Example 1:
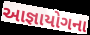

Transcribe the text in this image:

આજ્ઞાયોગના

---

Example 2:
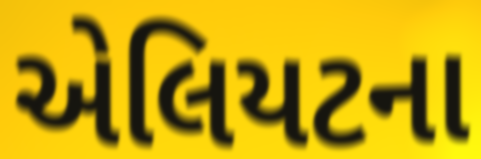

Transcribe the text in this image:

એલિયટના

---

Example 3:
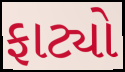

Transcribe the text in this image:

ફાટ્યો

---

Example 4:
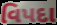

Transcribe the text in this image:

વિપદા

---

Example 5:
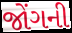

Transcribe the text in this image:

જોંગની